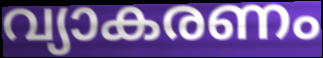
വ്യാകരണം